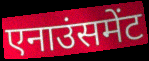
एनाउंसमेंट